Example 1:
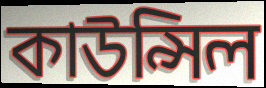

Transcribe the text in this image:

কাউন্সিল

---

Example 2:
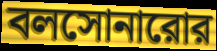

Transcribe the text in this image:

বলসোনারোর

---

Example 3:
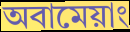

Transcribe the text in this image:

অবামেয়াং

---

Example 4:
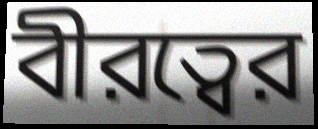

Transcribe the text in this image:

বীরত্বের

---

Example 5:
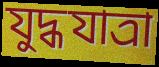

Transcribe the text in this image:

যুদ্ধযাত্রা